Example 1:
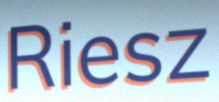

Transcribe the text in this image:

Riesz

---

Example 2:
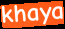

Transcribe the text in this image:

khaya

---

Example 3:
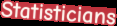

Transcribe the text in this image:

Statisticians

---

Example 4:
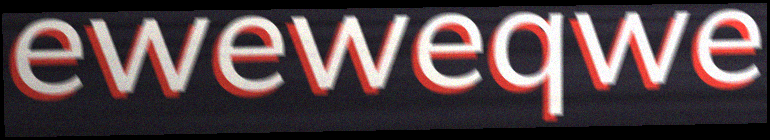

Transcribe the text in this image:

eweweqwe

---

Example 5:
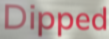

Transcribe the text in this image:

Dipped